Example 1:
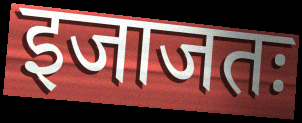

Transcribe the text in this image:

इजाजतः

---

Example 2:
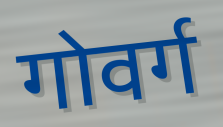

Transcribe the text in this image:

गोवर्ग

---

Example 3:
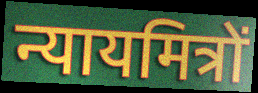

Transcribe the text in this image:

न्यायमित्रों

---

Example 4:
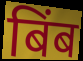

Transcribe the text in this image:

बिंब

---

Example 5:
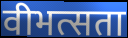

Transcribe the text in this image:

वीभत्सता